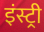
इंस्ट्री